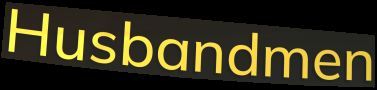
Husbandmen